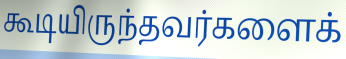
கூடியிருந்தவர்களைக்